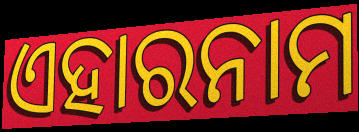
ଏହାରନାମ